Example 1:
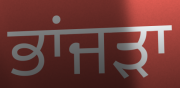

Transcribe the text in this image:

ਭਾਂਜੜਾ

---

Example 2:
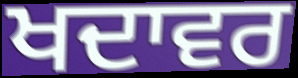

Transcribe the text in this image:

ਖਦਾਵਰ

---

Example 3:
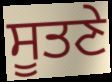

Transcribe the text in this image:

ਸੂਤਣੇ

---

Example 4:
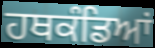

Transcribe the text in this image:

ਹਥਕੰਡਿਆਂ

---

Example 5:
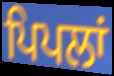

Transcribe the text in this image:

ਪਿਪਲਾਂ